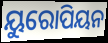
ୟୁରୋପିୟନ